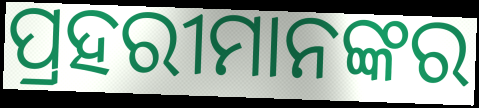
ପ୍ରହରୀମାନଙ୍କର